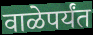
वाळेपर्यंत